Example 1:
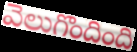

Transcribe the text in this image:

వెలుగొందింది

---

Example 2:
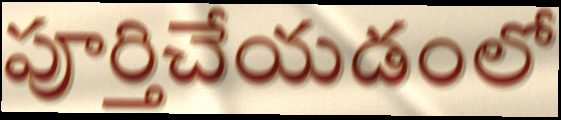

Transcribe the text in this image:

పూర్తిచేయడంలో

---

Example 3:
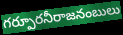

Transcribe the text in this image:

గర్పూరనీరాజనంబులు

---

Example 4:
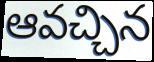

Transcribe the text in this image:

ఆవచ్చిన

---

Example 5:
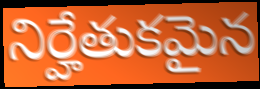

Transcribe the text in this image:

నిర్హేతుకమైన